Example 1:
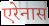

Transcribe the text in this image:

एरेनास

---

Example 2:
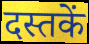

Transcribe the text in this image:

दस्तकें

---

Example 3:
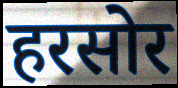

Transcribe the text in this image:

हरसोर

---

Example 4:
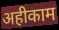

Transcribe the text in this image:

अहीकाम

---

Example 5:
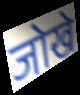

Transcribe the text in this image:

जोखे